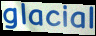
glacial